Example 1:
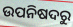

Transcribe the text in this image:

ଉପନିଷଦରୁ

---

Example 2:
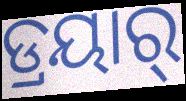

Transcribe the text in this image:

ଡ୍ରୟାର୍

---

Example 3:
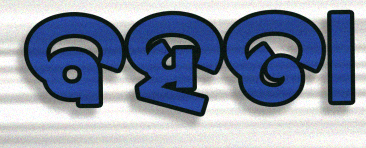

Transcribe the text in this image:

ବହତା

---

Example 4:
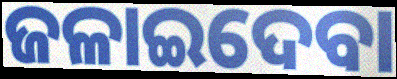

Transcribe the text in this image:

ଜଳାଇଦେବା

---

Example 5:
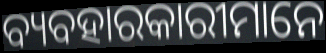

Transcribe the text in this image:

ବ୍ୟବହାରକାରୀମାନେ